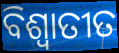
ବିଶ୍ୱାତୀତ